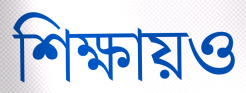
শিক্ষায়ও